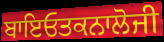
ਬਾਇਓਤਕਨਾਲੋਜੀ